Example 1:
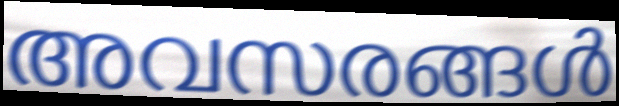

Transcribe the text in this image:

അവസരങ്ങൾ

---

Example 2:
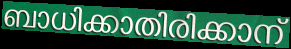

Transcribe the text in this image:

ബാധിക്കാതിരിക്കാന്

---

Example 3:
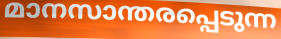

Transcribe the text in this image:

മാനസാന്തരപ്പെടുന്ന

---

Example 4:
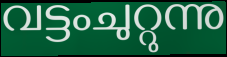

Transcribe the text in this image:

വട്ടംചുറ്റുന്നു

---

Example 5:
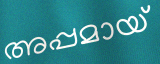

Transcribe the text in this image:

അപ്പമായ്